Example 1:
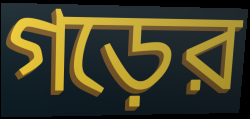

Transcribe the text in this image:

গড়ের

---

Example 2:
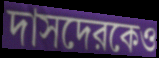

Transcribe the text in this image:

দাসদেরকেও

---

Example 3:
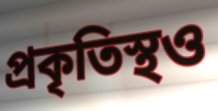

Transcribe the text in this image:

প্রকৃতিস্থও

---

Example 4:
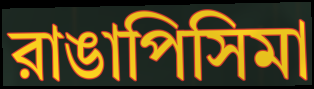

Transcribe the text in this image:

রাঙাপিসিমা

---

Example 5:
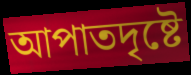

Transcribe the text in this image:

আপাতদৃষ্টে